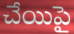
చేయిపై